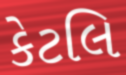
કેટલિ